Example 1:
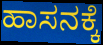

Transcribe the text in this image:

ಹಾಸನಕ್ಕೆ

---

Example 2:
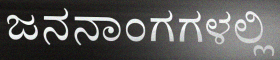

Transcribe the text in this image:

ಜನನಾಂಗಗಳಲ್ಲಿ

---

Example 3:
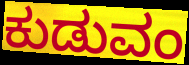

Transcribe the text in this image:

ಕುಡುವಂ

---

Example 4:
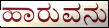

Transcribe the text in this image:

ಹಾರುವನು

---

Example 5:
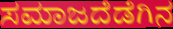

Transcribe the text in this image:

ಸಮಾಜದೆಡೆಗಿನ